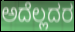
ಅದೆಲ್ಲದರ